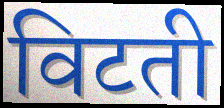
विटती